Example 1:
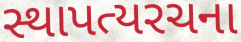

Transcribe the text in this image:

સ્થાપત્યરચના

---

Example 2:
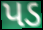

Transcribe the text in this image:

પડ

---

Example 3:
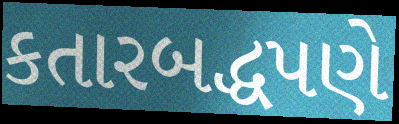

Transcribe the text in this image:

કતારબદ્ધપણે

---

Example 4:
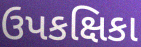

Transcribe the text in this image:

ઉપકક્ષિકા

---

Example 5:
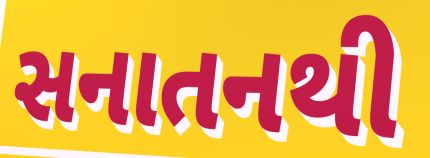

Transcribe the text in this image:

સનાતનથી